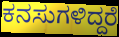
ಕನಸುಗಳಿದ್ದರೆ